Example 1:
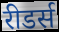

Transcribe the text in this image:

रीडर्स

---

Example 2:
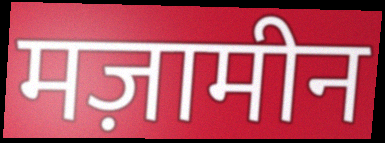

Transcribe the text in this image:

मज़ामीन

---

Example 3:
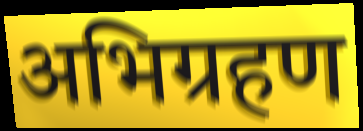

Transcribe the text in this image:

अभिग्रहण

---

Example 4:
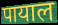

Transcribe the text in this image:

पायाल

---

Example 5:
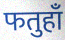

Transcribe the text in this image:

फतुहाँ